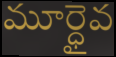
మూర్ధైవ